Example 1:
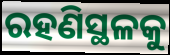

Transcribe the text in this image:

ରହଣିସ୍ଥଳକୁ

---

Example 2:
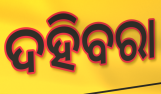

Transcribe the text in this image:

ଦହିବରା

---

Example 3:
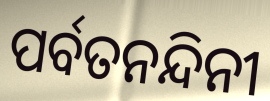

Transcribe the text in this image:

ପର୍ବତନନ୍ଦିନୀ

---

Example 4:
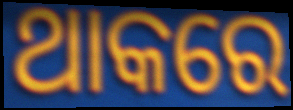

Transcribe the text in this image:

ଥାକରେ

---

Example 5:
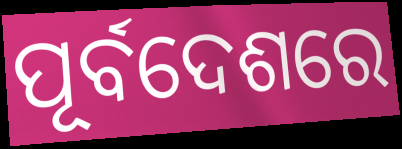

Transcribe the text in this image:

ପୂର୍ବଦେଶରେ